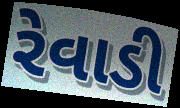
રેવાડી